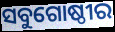
ସବୁଗୋଷ୍ଠୀର